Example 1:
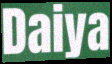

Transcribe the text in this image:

Daiya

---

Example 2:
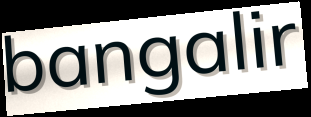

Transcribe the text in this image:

bangalir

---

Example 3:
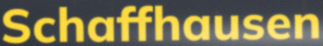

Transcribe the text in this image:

Schaffhausen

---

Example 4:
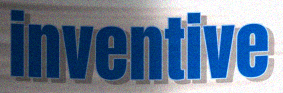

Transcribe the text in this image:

inventive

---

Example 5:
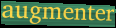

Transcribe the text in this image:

augmenter